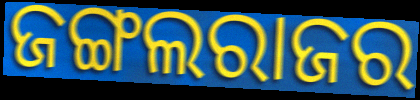
ଜଙ୍ଗଲରାଜର